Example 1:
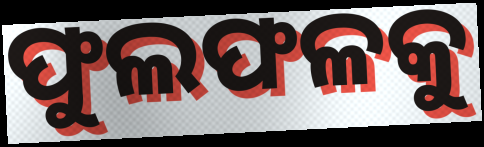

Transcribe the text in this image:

ଫୁଲଫଳକୁ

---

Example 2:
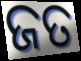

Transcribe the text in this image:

ଜତ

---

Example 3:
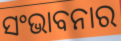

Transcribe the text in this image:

ସଂଭାବନାର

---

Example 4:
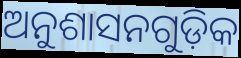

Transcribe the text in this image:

ଅନୁଶାସନଗୁଡ଼ିକ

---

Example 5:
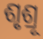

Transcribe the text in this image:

ଶୃଶ୍ରୂ